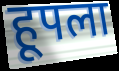
हूपला